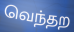
வெந்தற